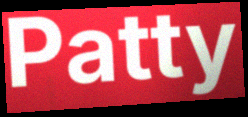
Patty